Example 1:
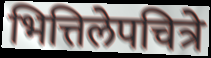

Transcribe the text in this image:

भित्तिलेपचित्रे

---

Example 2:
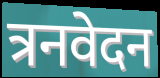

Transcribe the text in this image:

त्रनवेदन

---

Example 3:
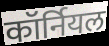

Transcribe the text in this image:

कॉर्नियल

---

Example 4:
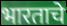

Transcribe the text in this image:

भारताचे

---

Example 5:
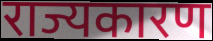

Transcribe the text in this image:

राज्यकारण